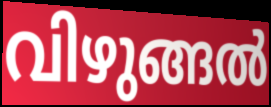
വിഴുങ്ങൽ